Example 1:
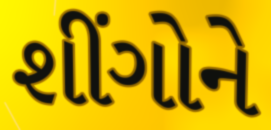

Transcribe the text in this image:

શીંગોને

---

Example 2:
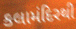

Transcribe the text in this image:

કલામંદિરથી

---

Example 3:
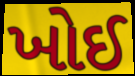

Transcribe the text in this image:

ખોઈ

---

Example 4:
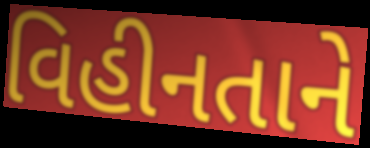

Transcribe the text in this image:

વિહીનતાને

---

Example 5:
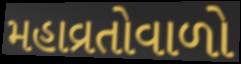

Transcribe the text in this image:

મહાવ્રતોવાળો